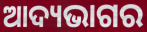
ଆଦ୍ୟଭାଗର